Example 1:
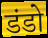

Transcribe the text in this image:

डंडो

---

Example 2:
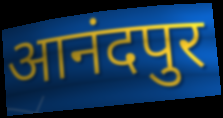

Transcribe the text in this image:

आनंदपुर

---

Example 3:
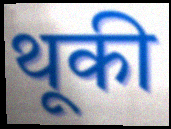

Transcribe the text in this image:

थूकी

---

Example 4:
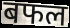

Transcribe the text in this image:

बफल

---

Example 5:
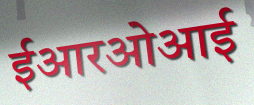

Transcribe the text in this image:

ईआरओआई